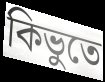
কিভুতে